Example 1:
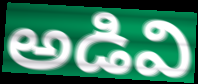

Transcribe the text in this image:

అడివి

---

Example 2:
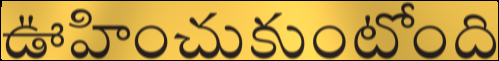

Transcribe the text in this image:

ఊహించుకుంటోంది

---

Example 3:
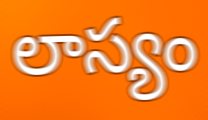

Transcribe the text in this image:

లాస్యం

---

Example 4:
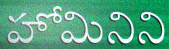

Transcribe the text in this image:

హోమినిని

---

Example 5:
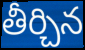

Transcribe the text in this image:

తీర్చిన